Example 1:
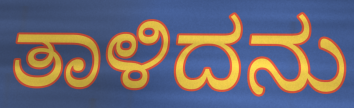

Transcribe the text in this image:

ತಾಳಿದನು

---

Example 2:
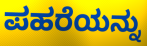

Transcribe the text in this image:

ಪಹರೆಯನ್ನು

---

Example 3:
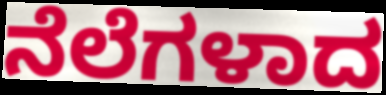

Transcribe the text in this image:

ನೆಲೆಗಳಾದ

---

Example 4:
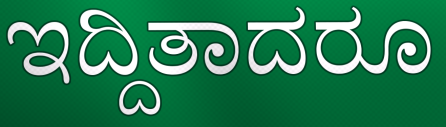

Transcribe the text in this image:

ಇದ್ದಿತಾದರೂ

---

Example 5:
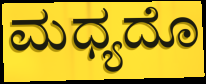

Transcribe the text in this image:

ಮಧ್ಯದೊ